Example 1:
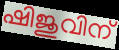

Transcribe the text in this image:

ഷിജുവിന്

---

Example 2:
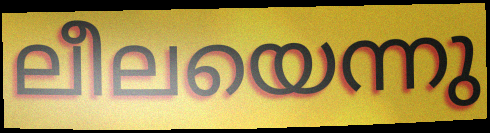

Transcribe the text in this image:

ലീലയെന്നു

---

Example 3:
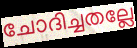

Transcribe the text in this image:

ചോദിച്ചതല്ലേ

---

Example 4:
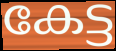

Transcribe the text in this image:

കേട്ട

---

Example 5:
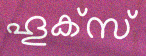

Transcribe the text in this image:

ഹൂക്സ്